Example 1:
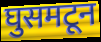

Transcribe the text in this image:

घुसमटून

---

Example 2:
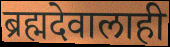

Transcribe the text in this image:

ब्रह्मदेवालाही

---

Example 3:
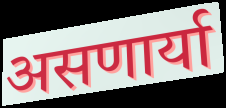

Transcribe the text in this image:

असणार्या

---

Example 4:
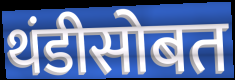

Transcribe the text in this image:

थंडीसोबत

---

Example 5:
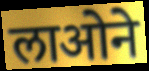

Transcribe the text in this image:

लाओने